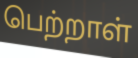
பெற்றாள்